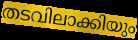
തടവിലാക്കിയും